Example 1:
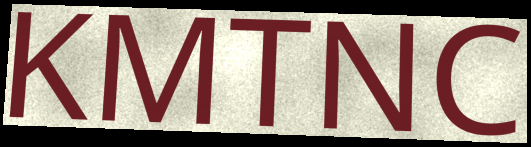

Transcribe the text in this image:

KMTNC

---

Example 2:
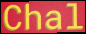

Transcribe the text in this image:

Chal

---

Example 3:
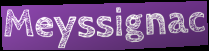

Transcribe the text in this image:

Meyssignac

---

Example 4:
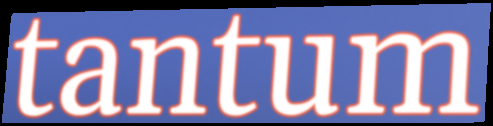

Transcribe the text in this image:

tantum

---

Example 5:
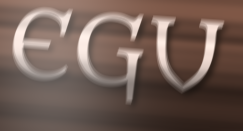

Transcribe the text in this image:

EGU